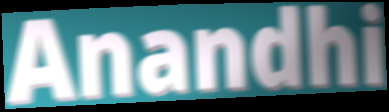
Anandhi